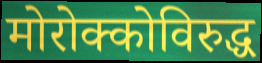
मोरोक्कोविरुद्ध